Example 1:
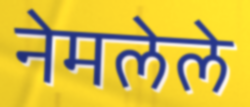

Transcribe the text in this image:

नेमलेले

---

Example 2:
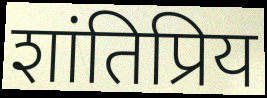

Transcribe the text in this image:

शांतिप्रिय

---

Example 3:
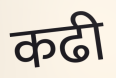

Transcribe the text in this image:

कढी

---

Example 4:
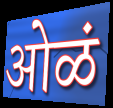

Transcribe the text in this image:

ओळं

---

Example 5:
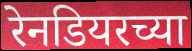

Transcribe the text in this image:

रेनडियरच्या